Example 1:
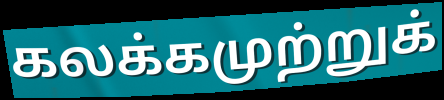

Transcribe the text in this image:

கலக்கமுற்றுக்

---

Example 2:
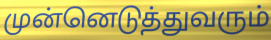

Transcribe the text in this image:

முன்னெடுத்துவரும்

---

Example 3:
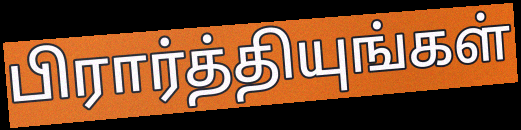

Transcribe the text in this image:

பிரார்த்தியுங்கள்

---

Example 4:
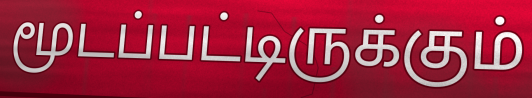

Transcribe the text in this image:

மூடப்பட்டிருக்கும்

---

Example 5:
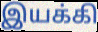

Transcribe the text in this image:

இயக்கி